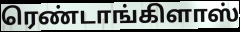
ரெண்டாங்கிளாஸ்